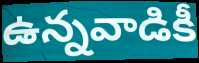
ఉన్నవాడికీ